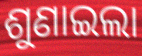
ଶୁଣାଇଲା